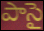
పాసై